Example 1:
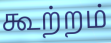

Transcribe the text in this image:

கூற்றம்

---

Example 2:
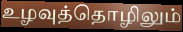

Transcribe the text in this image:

உழவுத்தொழிலும்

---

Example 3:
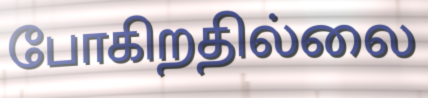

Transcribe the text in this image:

போகிறதில்லை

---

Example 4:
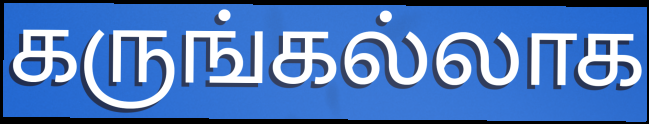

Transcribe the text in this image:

கருங்கல்லாக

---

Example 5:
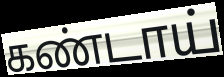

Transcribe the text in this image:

கண்டாய்